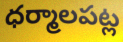
ధర్మాలపట్ల